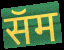
सॅम